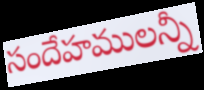
సందేహములన్నీ